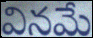
వినమే